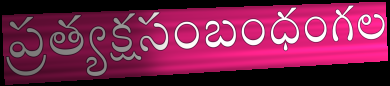
ప్రత్యక్షసంబంధంగల